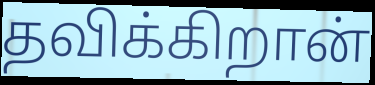
தவிக்கிறான்